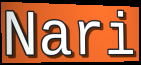
Nari